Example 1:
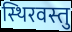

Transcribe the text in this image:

स्थिरवस्तु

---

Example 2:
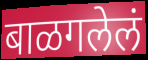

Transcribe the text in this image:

बाळगलेलं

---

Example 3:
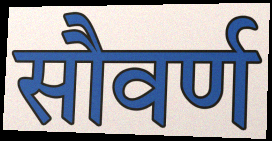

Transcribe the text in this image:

सौवर्ण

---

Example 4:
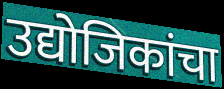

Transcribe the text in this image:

उद्योजिकांचा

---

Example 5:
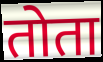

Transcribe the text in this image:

तोता